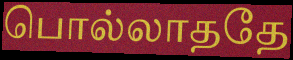
பொல்லாததே